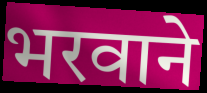
भरवाने